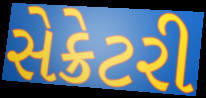
સેક્રેટરી